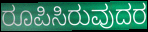
ರೂಪಿಸಿರುವುದರ